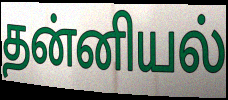
தன்னியல்